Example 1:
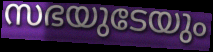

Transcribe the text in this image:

സഭയുടേയും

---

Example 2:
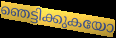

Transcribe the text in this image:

ഞെട്ടിക്കുകയോ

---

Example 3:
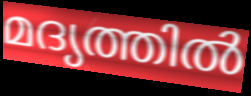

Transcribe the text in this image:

മദ്യത്തിൽ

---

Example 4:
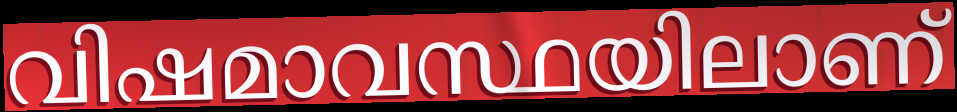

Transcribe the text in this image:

വിഷമാവസ്ഥയിലാണ്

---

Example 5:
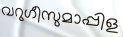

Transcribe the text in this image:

വറുഗീസുമാപ്പിള